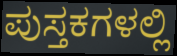
ಪುಸ್ತಕಗಳಲ್ಲಿ